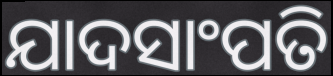
ଯାଦସାଂପତି